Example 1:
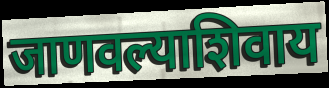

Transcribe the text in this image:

जाणवल्याशिवाय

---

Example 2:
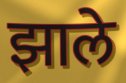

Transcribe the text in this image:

झाले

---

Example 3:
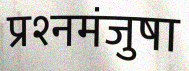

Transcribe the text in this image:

प्रश्नमंजुषा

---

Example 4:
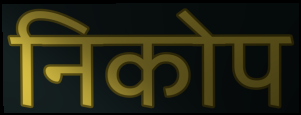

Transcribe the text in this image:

निकोप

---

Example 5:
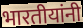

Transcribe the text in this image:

भारतीयांनी